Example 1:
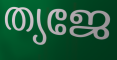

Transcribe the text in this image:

ത്യജേ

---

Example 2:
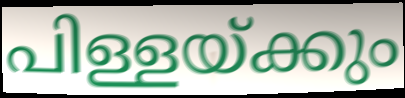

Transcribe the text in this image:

പിള്ളയ്ക്കും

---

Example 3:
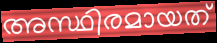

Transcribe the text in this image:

അസ്ഥിരമായത്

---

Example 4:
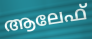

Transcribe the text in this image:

ആലേഫ്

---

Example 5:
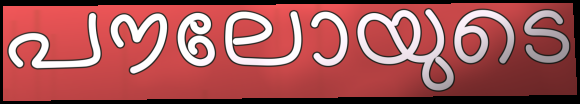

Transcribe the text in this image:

പൗലോയുടെ